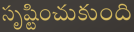
సృష్టించుకుంది